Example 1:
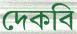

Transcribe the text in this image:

দেকবি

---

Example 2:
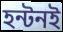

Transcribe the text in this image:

হন্টনই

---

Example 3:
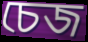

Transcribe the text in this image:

চেজ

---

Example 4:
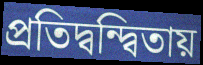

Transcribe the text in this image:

প্রতিদ্বন্দ্বিতায়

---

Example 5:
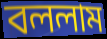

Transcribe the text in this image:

বললাম